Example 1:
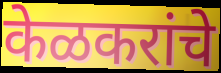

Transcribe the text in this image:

केळकरांचे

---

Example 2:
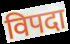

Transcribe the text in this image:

विपदा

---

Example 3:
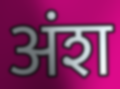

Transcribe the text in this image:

अंश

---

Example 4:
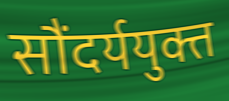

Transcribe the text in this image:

सौंदर्ययुक्त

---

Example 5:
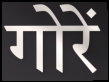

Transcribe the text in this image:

गोरें